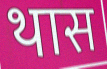
थास